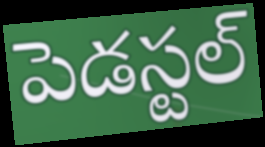
పెడస్టల్